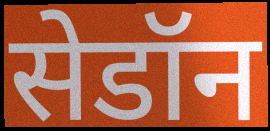
सेडॉन